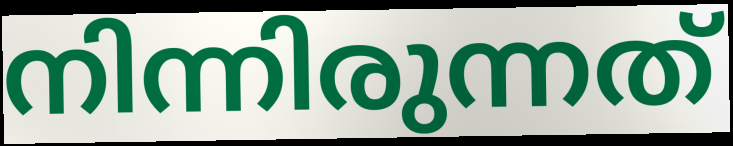
നിന്നിരുന്നത്